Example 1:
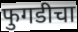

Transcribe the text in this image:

फुगडीचा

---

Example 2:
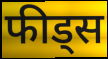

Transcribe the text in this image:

फीड्स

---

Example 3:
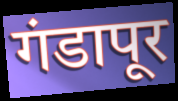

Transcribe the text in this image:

गंडापूर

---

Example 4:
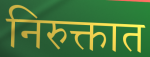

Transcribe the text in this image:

निरुक्तात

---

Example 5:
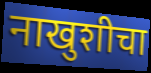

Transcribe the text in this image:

नाखुशीचा